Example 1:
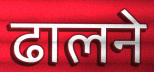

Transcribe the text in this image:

ढालने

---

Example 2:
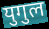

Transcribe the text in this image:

युगुल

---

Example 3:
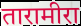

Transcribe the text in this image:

तारामीरा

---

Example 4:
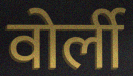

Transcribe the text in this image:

वोर्ली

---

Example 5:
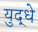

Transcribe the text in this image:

युद्धे